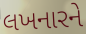
લખનારને